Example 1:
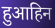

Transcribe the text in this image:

हुआहिन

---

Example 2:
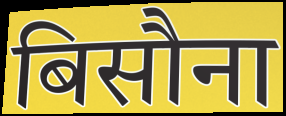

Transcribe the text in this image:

बिसौना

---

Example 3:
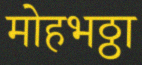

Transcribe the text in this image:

मोहभठ्ठा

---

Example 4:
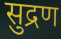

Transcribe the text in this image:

सुद्रण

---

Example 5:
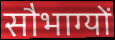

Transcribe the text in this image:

सौभाग्यों